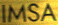
IMSA